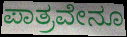
ಪಾತ್ರವೇನೂ